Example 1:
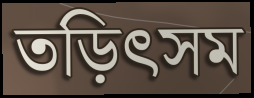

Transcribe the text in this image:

তড়িৎসম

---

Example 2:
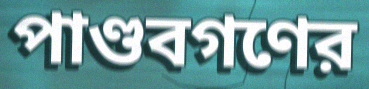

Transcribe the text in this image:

পাণ্ডবগণের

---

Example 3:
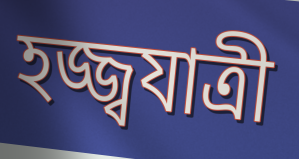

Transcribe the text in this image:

হজ্জ্বযাত্রী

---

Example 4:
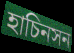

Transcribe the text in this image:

হাচিনসন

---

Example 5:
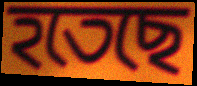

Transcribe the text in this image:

হতেছে